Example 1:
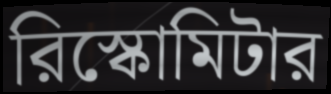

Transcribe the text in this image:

রিস্কোমিটার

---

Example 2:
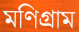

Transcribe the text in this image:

মণিগ্রাম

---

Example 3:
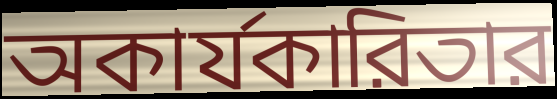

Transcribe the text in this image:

অকার্যকারিতার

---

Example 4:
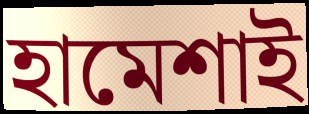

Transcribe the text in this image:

হামেশাই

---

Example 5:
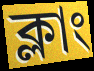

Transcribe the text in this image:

ক্লাং